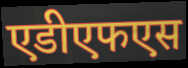
एडीएफएस